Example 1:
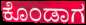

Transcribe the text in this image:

ಕೊಂಡಾಗ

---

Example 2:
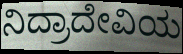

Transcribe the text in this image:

ನಿದ್ರಾದೇವಿಯ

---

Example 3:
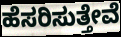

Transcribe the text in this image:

ಹೆಸರಿಸುತ್ತೇವೆ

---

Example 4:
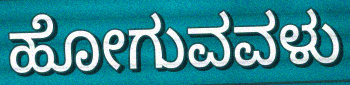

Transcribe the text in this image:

ಹೋಗುವವಳು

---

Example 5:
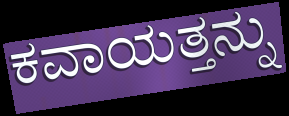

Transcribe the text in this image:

ಕವಾಯತ್ತನ್ನು